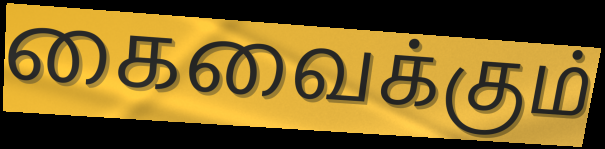
கைவைக்கும்